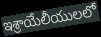
ఇశ్రాయేలీయులలో